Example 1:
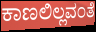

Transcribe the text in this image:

ಕಾಣಲಿಲ್ಲವಂತೆ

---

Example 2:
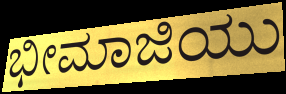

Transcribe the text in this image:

ಭೀಮಾಜಿಯು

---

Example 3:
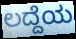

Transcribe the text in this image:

ಲದ್ದೆಯ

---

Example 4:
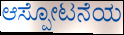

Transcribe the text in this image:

ಆಸ್ಪೋಟನೆಯ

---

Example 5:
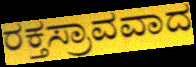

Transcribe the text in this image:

ರಕ್ತಸ್ರಾವವಾದ